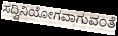
ಸದ್ವಿನಿಯೋಗವಾಗುವಂತೆ